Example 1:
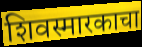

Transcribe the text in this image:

शिवस्मारकाचा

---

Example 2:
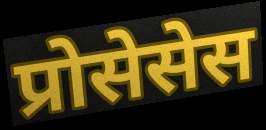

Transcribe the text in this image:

प्रोसेसेस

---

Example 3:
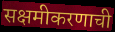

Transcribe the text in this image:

सक्षमीकरणाची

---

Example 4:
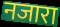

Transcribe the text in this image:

नजारा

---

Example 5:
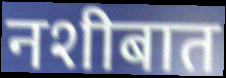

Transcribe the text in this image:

नशीबात